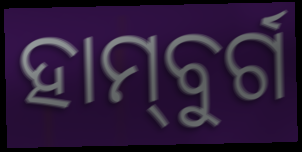
ହାମ୍‌ବୁର୍ଗ